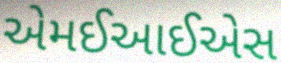
એમઈઆઈએસ